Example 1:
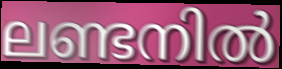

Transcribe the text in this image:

ലണ്ടനിൽ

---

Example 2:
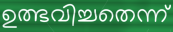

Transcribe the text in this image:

ഉത്ഭവിച്ചതെന്ന്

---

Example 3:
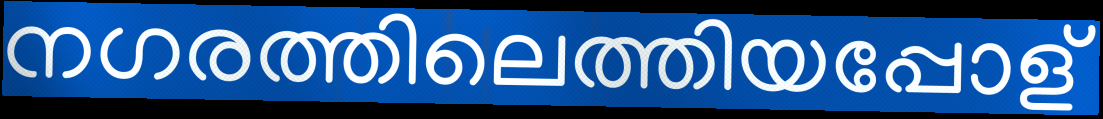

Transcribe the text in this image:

നഗരത്തിലെത്തിയപ്പോള്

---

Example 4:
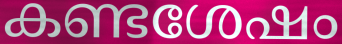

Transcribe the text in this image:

കണ്ടശേഷം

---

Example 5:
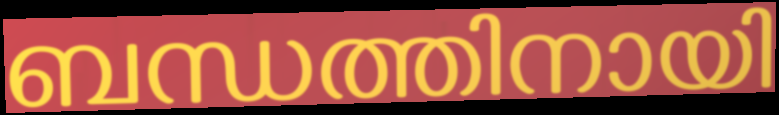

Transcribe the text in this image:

ബന്ധത്തിനായി